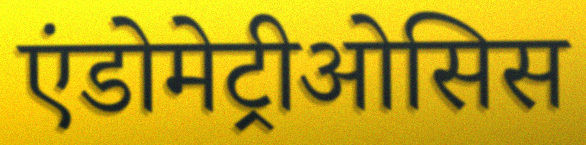
एंडोमेट्रीओसिस